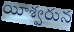
యీశ్వరున